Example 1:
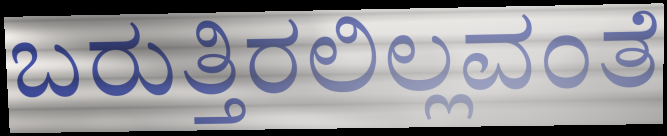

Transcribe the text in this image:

ಬರುತ್ತಿರಲಿಲ್ಲವಂತೆ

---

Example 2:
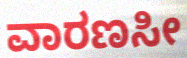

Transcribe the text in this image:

ವಾರಣಸೀ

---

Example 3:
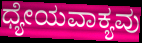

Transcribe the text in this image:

ಧ್ಯೇಯವಾಕ್ಯವು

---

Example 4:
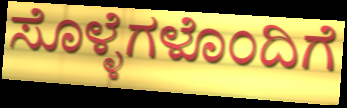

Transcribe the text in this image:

ಸೊಳ್ಳೆಗಳೊಂದಿಗೆ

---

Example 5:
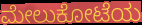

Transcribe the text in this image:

ಮೇಲುಕೋಟೆಯ